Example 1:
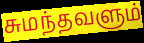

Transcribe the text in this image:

சுமந்தவளும்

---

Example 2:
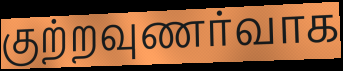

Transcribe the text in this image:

குற்றவுணர்வாக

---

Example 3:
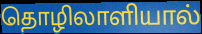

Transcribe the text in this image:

தொழிலாளியால்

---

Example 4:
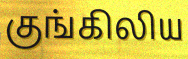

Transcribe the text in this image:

குங்கிலிய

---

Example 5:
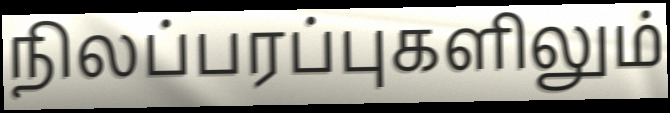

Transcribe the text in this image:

நிலப்பரப்புகளிலும்